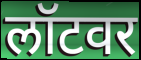
लॉटवर